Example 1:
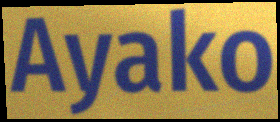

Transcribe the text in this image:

Ayako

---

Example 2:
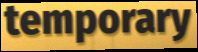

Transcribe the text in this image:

temporary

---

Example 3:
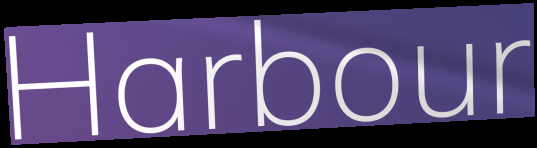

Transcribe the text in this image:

Harbour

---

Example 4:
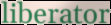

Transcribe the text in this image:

liberator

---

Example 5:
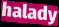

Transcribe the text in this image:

halady